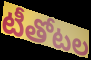
టీతోటల